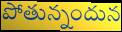
పోతున్నందున